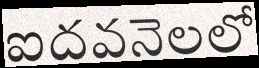
ఐదవనెలలో